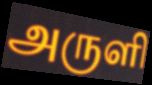
அருளி